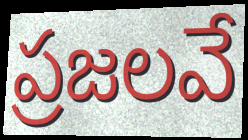
ప్రజలవే